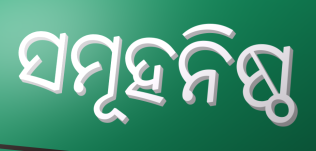
ସମୂହନିଷ୍ଠ